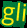
gli